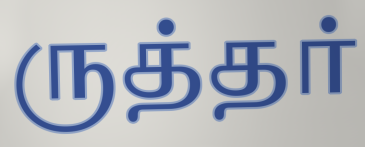
ருத்தர்